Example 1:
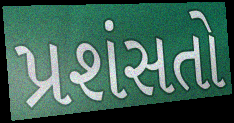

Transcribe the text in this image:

પ્રશંસતો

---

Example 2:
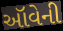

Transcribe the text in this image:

ઑવેની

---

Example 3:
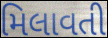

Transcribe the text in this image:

મિલાવતી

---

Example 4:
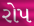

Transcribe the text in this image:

રોપ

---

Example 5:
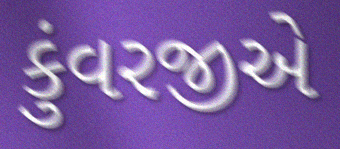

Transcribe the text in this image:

કુંવરજીએ